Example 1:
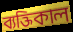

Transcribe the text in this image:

ব্যক্তিকাল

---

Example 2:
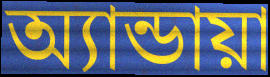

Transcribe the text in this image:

অ্যান্ডায়া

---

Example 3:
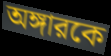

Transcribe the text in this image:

অঙ্গারকে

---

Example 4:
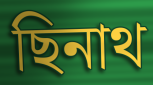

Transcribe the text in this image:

ছিনাথ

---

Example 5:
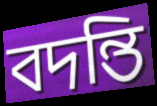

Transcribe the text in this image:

বদন্তি